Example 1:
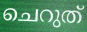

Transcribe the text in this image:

ചെറുത്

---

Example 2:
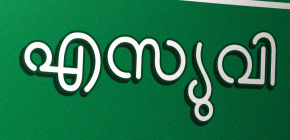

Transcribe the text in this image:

എസ്യുവി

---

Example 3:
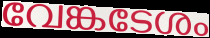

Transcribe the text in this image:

വേങ്കടേശം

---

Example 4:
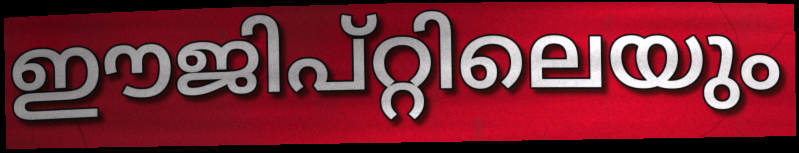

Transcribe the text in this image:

ഈജിപ്റ്റിലെയും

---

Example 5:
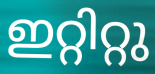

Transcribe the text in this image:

ഇറ്റിറ്റു